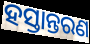
ହସ୍ତାନ୍ତରଣ